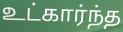
உட்கார்ந்த